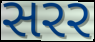
સરર